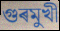
গুৰমুখী